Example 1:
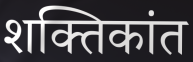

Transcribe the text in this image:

शक्तिकांत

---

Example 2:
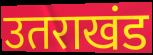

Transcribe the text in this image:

उतराखंड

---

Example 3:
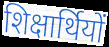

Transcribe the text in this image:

शिक्षार्थियों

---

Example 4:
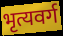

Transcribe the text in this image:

भृत्यवर्ग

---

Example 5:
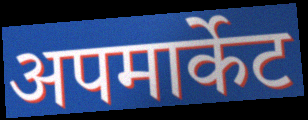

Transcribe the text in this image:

अपमार्केट